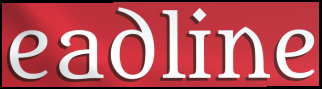
eadline